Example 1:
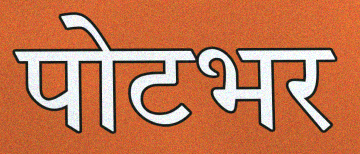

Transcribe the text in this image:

पोटभर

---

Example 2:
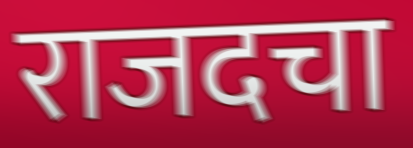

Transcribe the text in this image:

राजदचा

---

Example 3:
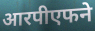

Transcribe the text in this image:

आरपीएफने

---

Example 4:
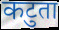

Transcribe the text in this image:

कटुता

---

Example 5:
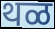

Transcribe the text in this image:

थळ